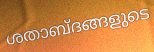
ശതാബ്ദങ്ങളുടെ